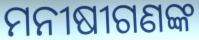
ମନୀଷୀଗଣଙ୍କ